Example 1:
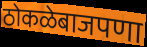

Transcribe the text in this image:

ठोकळेबाजपणा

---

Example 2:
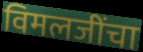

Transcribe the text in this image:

विमलजींचा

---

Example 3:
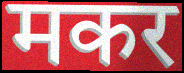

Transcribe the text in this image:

मकर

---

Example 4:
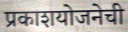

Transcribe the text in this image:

प्रकाशयोजनेची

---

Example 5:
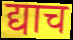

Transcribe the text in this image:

द्याच